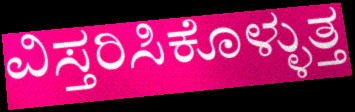
ವಿಸ್ತರಿಸಿಕೊಳ್ಳುತ್ತ